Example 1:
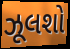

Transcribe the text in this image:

ઝૂલશો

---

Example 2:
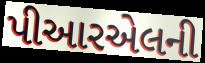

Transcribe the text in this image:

પીઆરએલની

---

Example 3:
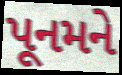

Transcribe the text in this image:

પૂનમને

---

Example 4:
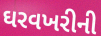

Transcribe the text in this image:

ઘરવખરીની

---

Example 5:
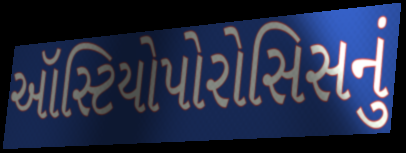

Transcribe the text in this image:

ઑસ્ટિયોપોરોસિસનું